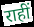
राहीं